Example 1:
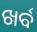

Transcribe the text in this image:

ଖର୍ବ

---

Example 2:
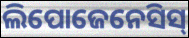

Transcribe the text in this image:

ଲିପୋଜେନେସିସ୍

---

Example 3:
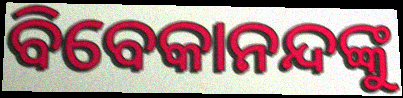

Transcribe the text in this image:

ବିବେକାନନ୍ଦଙ୍କୁ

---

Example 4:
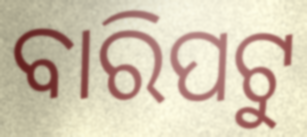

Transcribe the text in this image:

ବାରିପଟୁ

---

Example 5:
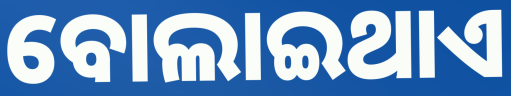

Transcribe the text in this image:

ବୋଲାଇଥାଏ